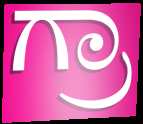
ಗ್ರಾ